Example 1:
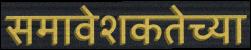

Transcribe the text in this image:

समावेशकतेच्या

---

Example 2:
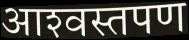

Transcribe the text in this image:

आश्वस्तपण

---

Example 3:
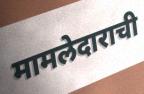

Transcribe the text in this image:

मामलेदाराची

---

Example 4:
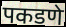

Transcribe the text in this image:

पकडणे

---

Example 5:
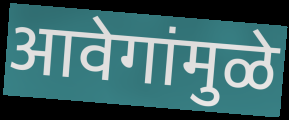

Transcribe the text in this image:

आवेगांमुळे